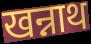
खन्नाथ